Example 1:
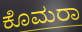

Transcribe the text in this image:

ಕೊಮರಾ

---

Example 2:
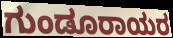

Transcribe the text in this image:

ಗುಂಡೂರಾಯರ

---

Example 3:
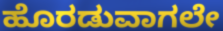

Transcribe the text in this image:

ಹೊರಡುವಾಗಲೇ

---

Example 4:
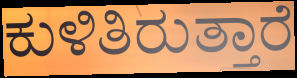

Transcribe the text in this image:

ಕುಳಿತಿರುತ್ತಾರೆ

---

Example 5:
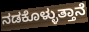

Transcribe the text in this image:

ನಡಕೊಳ್ಳುತ್ತಾನೆ